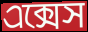
এক্সেস